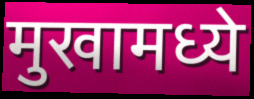
मुखामध्ये